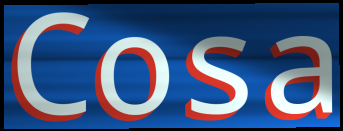
Cosa